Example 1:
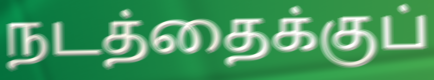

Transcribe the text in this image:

நடத்தைக்குப்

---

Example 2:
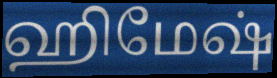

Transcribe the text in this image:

ஹிமேஷ்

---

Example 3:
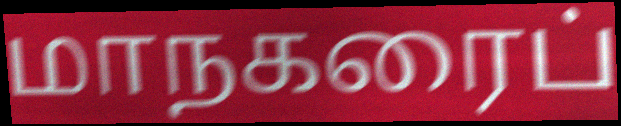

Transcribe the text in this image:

மாநகரைப்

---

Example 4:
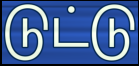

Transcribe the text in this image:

டுட்டு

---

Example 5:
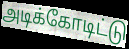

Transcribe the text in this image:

அடிக்கோடிட்டு